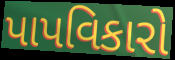
પાપવિકારો